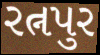
રત્નપુર